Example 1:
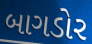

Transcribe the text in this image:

બાગડોર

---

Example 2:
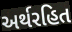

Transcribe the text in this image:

અર્થરહિત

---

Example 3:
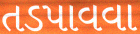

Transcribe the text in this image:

તડપાવવા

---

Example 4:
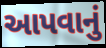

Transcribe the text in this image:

આપવાનું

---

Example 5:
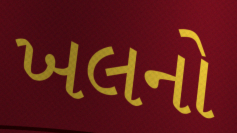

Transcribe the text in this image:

ખલનો